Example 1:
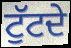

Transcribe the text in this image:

ਟੁੱਟਦੇ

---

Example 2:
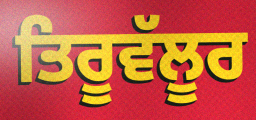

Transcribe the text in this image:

ਤਿਰੂਵੱਲੂਰ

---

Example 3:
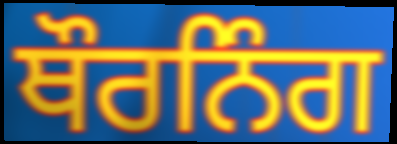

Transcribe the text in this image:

ਥੌਰਨਿੰਗ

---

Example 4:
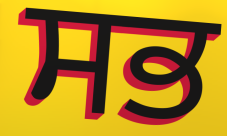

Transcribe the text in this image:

ਸਭ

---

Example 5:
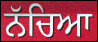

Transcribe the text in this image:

ਨੱਚਿਆ